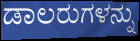
ಡಾಲರುಗಳನ್ನು